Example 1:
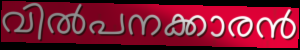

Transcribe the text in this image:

വിൽപനക്കാരൻ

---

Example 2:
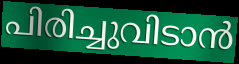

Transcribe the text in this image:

പിരിച്ചുവിടാൻ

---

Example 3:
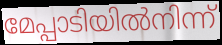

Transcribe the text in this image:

മേപ്പാടിയിൽനിന്ന്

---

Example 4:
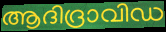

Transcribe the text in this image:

ആദിദ്രാവിഡ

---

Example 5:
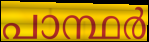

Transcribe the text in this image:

പാന്ഥർ